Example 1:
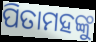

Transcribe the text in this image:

ପିତାମହଙ୍କୁ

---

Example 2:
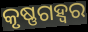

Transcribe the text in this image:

କୃଷ୍ଣଗହ୍ୱର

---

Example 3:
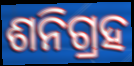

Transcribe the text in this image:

ଶନିଗ୍ରହ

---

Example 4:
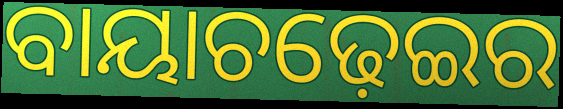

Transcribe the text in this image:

ବାୟାଚଢ଼େଇର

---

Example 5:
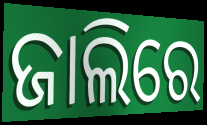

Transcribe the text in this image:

ଜାଲିରେ